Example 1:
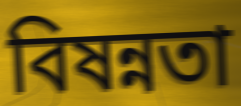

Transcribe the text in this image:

বিষন্নতা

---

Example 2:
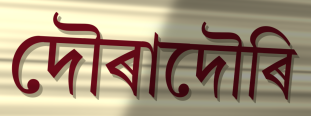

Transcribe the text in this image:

দৌৰাদৌৰি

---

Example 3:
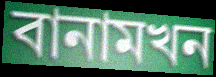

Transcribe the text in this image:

বানামখন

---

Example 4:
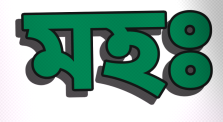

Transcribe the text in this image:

মহঃ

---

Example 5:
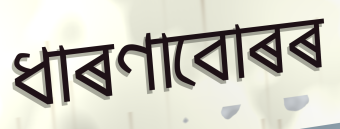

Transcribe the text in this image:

ধাৰণাবোৰৰ